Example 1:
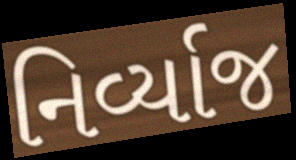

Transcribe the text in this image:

નિર્વ્યાજ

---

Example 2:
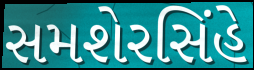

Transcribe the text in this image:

સમશેરસિંહે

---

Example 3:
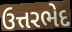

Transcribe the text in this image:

ઉત્તરભેદ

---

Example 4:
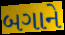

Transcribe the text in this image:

બગાને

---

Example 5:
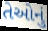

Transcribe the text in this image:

તેઓનું